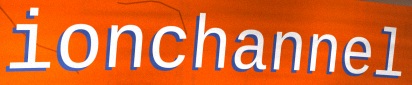
ionchannel